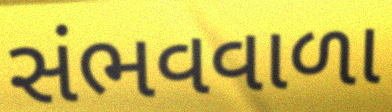
સંભવવાળા